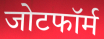
जोटफॉर्म